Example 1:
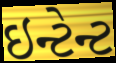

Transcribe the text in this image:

ઇન્ટેન્ટ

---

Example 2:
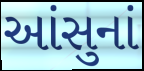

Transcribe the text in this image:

આંસુનાં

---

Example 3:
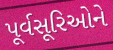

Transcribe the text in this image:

પૂર્વસૂરિઓને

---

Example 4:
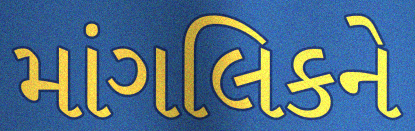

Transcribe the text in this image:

માંગલિકને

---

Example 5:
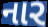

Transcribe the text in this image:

નાર